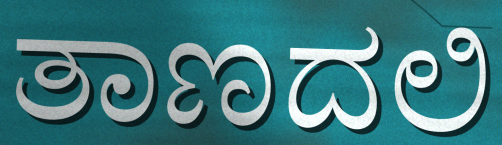
ತಾಣದಲಿ